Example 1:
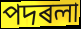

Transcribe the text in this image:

পদৰলা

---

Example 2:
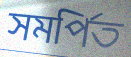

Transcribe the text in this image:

সমৰ্পিত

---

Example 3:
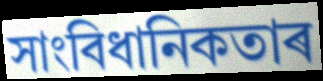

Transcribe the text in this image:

সাংবিধানিকতাৰ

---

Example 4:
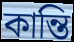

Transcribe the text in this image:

কান্তি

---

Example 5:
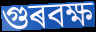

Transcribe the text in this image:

গুৰবক্ষ